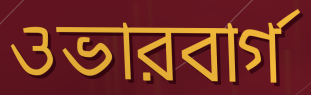
ওভারবার্গ